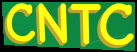
CNTC